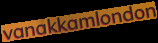
vanakkamlondon